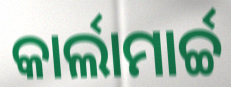
କାର୍ଲାମାର୍ଚ୍ଚ